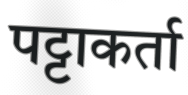
पट्टाकर्ता